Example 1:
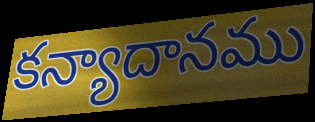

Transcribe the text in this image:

కన్యాదానము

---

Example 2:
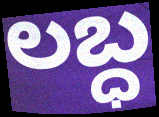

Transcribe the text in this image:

లబ్ధ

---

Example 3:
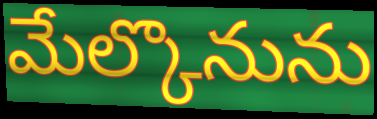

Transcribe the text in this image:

మేల్కొనును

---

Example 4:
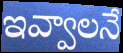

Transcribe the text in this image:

ఇవ్వాలనే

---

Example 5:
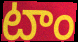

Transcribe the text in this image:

టాం